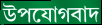
উপযোগবাদ